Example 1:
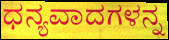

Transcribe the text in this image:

ಧನ್ಯವಾದಗಳನ್ನ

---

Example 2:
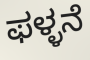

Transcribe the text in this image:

ಫಳ್ಳನೆ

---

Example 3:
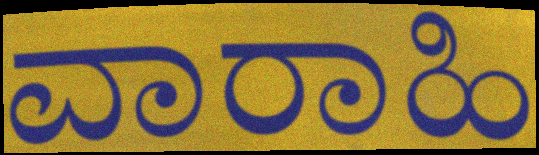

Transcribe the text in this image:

ವಾರಾಹಿ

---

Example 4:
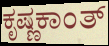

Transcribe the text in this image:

ಕೃಷ್ಣಕಾಂತ್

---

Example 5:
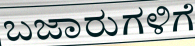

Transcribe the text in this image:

ಬಜಾರುಗಳಿಗೆ